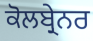
ਕੋਲਬ੍ਰੇਨਰ